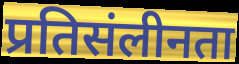
प्रतिसंलीनता